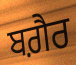
ਬਗ਼ੈਰ